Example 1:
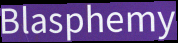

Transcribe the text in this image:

Blasphemy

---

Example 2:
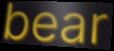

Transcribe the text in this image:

bear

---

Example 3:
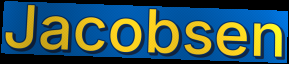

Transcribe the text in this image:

Jacobsen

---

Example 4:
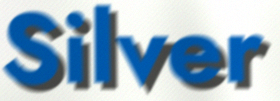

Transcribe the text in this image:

Silver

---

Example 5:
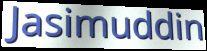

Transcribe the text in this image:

Jasimuddin